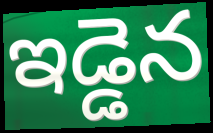
ఇడ్డెన